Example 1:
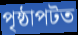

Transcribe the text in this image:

পৃষ্ঠাপটত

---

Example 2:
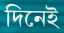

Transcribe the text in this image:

দিনেই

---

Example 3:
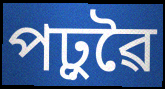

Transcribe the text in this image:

পঢ়ুৱৈ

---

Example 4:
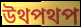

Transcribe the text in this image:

উথপথপ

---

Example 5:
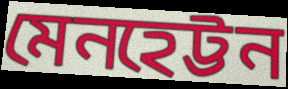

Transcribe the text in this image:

মেনহেট্টন